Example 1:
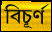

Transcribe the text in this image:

বিচূৰ্ণ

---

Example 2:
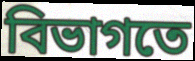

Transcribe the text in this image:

বিভাগতে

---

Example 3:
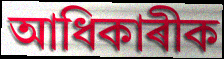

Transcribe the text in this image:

আধিকাৰীক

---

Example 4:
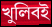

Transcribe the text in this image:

খুলিবই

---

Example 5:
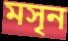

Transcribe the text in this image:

মসৃন